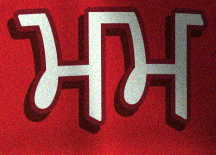
ਮਮ